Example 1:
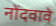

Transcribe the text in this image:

नोंदवावे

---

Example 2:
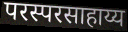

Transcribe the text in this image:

परस्परसाहाय्य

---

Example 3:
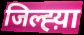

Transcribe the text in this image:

जिल्ह्य़ा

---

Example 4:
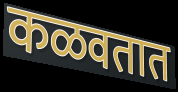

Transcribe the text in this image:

कळवतात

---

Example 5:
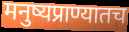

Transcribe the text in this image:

मनुष्यप्राण्यातच